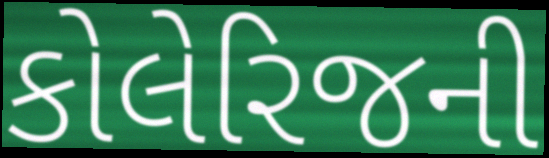
કોલેરિજની